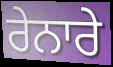
ਰੇਨਾਰੇ